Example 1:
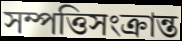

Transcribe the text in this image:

সম্পত্তিসংক্রান্ত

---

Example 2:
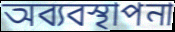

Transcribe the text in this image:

অব্যবস্থাপনা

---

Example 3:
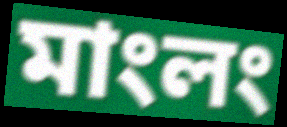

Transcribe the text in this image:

মাংলং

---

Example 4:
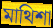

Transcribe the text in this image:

মাথিশা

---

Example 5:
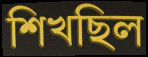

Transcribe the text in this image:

শিখছিল